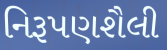
નિરૂપણશૈલી